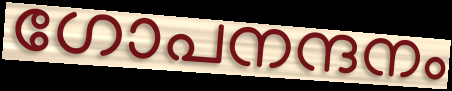
ഗോപനന്ദനം